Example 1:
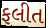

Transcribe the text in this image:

ફલીત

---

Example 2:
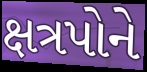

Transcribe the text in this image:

ક્ષત્રપોને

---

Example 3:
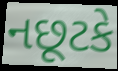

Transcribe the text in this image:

નછૂટકે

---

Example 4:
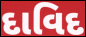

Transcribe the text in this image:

દાવિદ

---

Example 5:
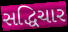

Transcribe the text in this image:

સદ્ધિચાર